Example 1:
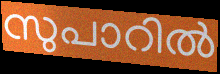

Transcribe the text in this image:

സുപാറിൽ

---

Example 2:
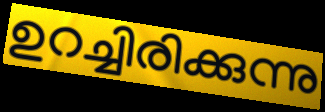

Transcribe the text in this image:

ഉറച്ചിരിക്കുന്നു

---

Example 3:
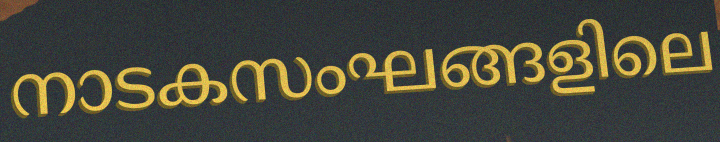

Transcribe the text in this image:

നാടകസംഘങ്ങളിലെ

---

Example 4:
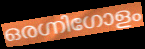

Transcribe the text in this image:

ഒരഗ്നിഗോളം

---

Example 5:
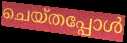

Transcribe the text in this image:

ചെയ്തപ്പോൾ